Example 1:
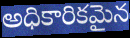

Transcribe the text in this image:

అధికారికమైన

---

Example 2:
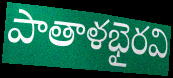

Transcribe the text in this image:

పాతాళభైరవి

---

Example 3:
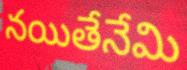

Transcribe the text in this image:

నయితేనేమి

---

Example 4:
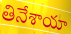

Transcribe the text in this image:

తినేశాయా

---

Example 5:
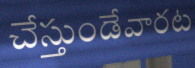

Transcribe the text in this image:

చేస్తుండేవారట